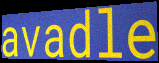
avadle